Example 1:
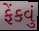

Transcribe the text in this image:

ફેંકવું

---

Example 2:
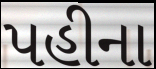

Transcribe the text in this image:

પહીના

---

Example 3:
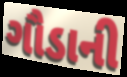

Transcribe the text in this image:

ગૌડાની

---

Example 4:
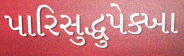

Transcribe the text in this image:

પારિસુદ્ધુપેક્ખા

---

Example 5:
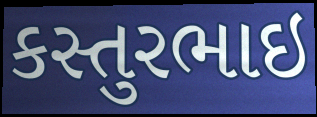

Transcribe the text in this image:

કસ્તુરભાઇ